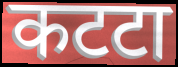
कटटा